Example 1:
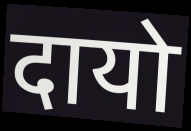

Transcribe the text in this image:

दायो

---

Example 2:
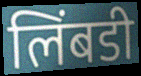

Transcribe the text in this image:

लिंबडी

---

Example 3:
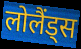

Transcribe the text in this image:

लोलैंड्स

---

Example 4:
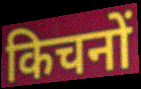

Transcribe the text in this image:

किचनों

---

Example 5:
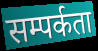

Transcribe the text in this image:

सम्पर्कता